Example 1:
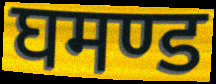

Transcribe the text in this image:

घमण्ड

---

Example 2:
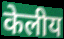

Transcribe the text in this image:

केलीय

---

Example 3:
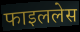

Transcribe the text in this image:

फाइललेस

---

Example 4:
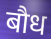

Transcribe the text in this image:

बौध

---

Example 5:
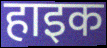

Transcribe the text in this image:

हाइक